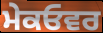
ਮੇਕਓਵਰ